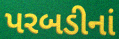
પરબડીનાં